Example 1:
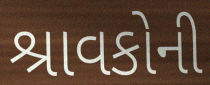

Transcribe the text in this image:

શ્રાવકોની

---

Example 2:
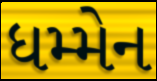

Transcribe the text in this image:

ધમ્મેન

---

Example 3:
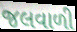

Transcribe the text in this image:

જલવાળી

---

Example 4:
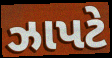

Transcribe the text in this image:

ઝાપટે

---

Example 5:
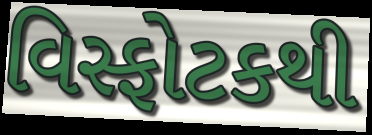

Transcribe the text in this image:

વિસ્ફોટકથી